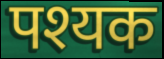
पश्यक